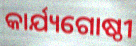
କାର୍ଯ୍ୟଗୋଷ୍ଠୀ